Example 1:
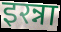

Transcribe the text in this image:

इरन्ना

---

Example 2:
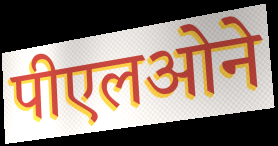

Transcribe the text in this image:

पीएलओने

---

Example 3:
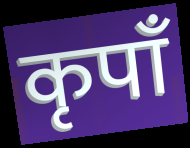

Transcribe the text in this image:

कृपाँ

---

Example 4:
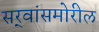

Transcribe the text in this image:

सर्वांसमोरील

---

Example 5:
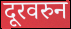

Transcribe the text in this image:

दूरवरुन